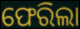
ଫେରିଲା